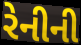
રેનીની